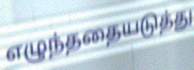
எழுந்ததையடுத்து